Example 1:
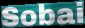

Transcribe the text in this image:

Sobai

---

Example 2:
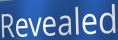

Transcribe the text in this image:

Revealed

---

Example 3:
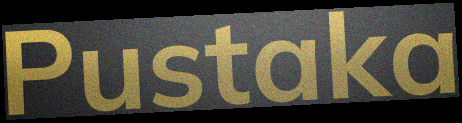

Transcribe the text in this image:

Pustaka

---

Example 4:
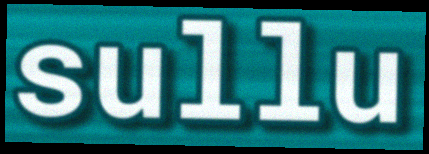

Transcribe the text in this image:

sullu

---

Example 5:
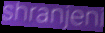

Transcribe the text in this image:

shranjeni